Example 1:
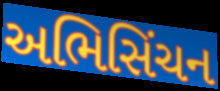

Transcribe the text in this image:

અભિસિંચન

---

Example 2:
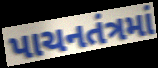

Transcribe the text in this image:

પાચનતંત્રમાં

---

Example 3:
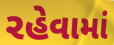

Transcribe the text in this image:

રહેવામાં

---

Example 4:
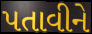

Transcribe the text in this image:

પતાવીને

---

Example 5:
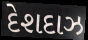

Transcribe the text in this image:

દેશદાઝ